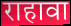
राहावा